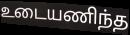
உடையணிந்த